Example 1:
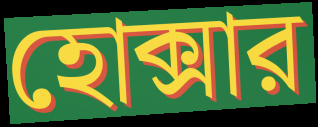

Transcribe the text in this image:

হোক্সার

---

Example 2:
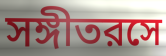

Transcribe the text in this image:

সঙ্গীতরসে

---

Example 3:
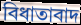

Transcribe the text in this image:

বিধাতাবাদ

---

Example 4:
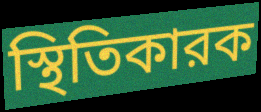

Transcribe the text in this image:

স্থিতিকারক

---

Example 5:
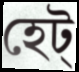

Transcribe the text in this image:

হেট্